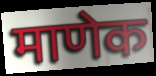
माणेक